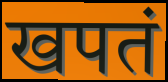
खपतं